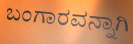
ಬಂಗಾರವನ್ನಾಗಿ